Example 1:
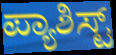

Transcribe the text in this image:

ಪ್ಯಾಶಿಸ್ಟ್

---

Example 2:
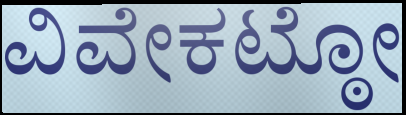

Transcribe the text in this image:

ವಿವೇಕಟ್ಠೋ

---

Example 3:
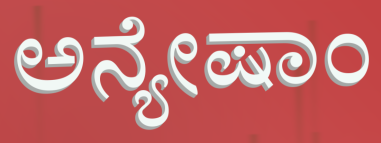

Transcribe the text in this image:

ಅನ್ಯೇಷಾಂ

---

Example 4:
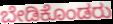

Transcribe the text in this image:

ಬೇಡಿಕೊಂಡರು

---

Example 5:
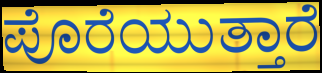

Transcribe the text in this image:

ಪೊರೆಯುತ್ತಾರೆ